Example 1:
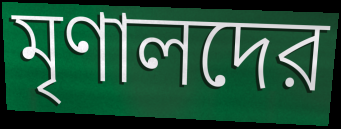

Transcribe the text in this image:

মৃণালদের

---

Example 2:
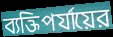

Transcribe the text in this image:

ব্যক্তিপর্যায়ের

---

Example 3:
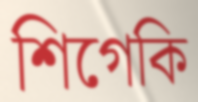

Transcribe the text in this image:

শিগেকি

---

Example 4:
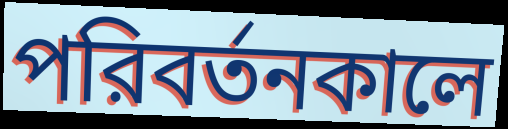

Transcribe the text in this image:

পরিবর্তনকালে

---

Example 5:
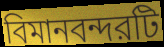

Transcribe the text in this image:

বিমানবন্দরটি